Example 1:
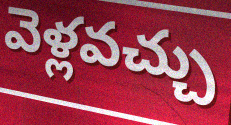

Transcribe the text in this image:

వెళ్లవచ్చు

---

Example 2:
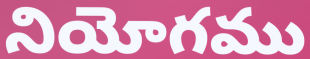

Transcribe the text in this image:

నియోగము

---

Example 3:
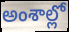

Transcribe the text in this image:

అంశాల్లో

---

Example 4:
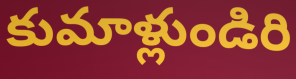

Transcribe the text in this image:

కుమాళ్లుండిరి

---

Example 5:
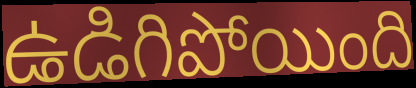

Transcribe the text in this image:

ఉడిగిపోయింది